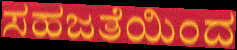
ಸಹಜತೆಯಿಂದ